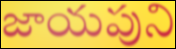
జాయపుని